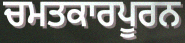
ਚਮਤਕਾਰਪੂਰਨ